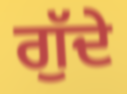
ਗੁੱਦੇ